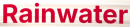
Rainwater